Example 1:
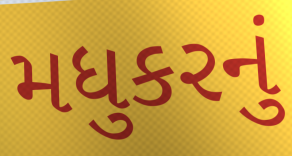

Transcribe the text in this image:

મધુકરનું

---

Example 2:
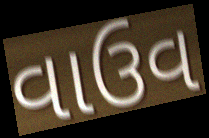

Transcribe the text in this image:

વાઉવ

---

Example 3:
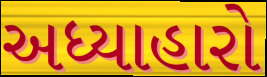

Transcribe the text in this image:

અધ્યાહારો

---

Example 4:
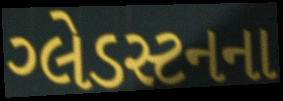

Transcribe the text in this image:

ગ્લેડસ્ટનના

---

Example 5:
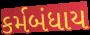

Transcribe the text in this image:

કર્મબંધાય